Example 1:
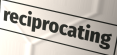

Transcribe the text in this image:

reciprocating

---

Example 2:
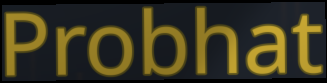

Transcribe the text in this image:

Probhat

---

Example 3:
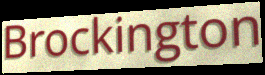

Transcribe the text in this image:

Brockington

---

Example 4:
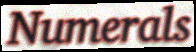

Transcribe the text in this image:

Numerals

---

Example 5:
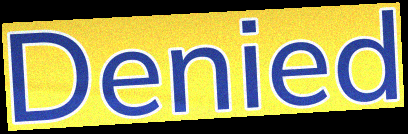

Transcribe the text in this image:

Denied